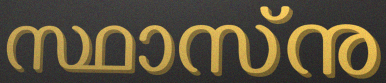
സ്ഥാസ്നു